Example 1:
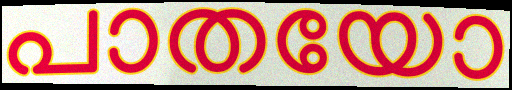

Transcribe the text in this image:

പാതയോ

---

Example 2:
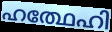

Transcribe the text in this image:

ഹത്ഥേഹി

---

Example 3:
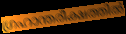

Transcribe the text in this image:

ഗ്രഹാന്തരീക്ഷത്തിൽ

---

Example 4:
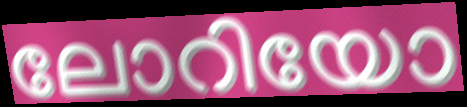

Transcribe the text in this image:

ലോറിയോ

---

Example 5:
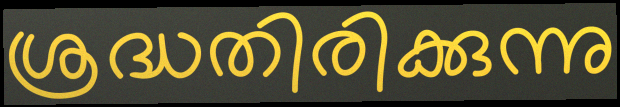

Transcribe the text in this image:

ശ്രദ്ധതിരിക്കുന്നു